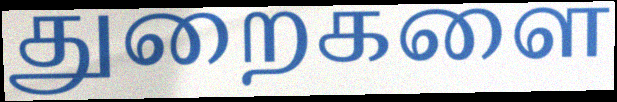
துறைகளை